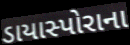
ડાયાસ્પોરાના